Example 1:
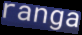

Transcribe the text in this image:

ranga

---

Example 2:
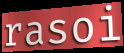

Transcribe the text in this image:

rasoi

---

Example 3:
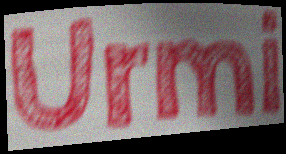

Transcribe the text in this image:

Urmi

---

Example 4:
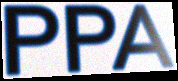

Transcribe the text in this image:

PPA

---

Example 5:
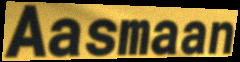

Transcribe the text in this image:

Aasmaan